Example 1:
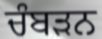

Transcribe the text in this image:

ਚੰਬੜਨ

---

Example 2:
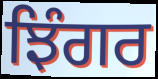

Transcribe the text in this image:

ਝਿੰਗਰ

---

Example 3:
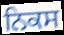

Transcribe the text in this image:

ਨਿਕਸ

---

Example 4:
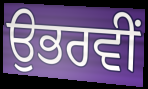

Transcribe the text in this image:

ਉਭਰਵੀਂ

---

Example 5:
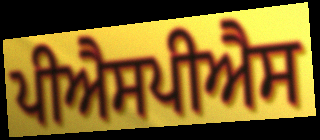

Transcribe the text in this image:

ਪੀਐਸਪੀਐਸ